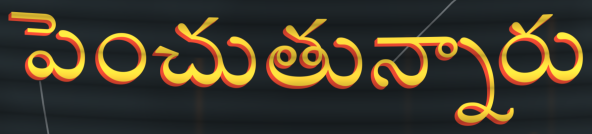
పెంచుతున్నారు